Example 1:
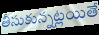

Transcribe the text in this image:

తీసుకున్నట్లయితే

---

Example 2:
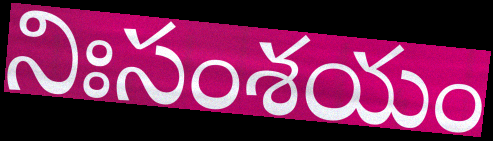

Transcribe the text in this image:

నిఃసంశయం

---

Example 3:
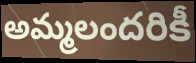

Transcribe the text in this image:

అమ్మలందరికీ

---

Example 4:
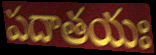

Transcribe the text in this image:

పదాతయః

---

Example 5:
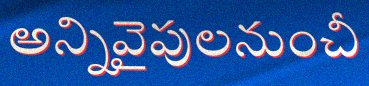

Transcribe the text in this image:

అన్నివైపులనుంచీ